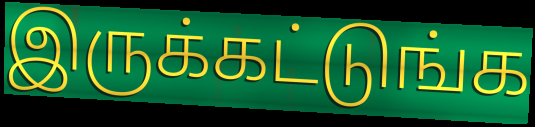
இருக்கட்டுங்க